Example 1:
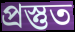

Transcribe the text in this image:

প্ৰস্তুত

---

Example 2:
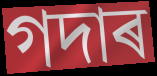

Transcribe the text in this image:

গদাৰ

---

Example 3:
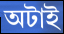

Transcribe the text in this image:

অটাই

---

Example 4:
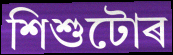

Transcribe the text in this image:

শিশুটোৰ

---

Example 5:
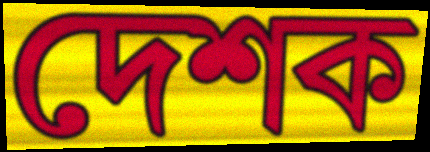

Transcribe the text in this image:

দেশক